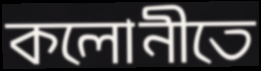
কলোনীতে